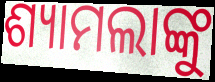
ଶ୍ୟାମଲାଙ୍କୁ